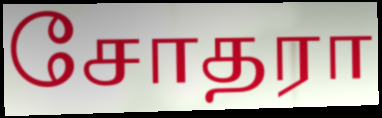
சோதரா